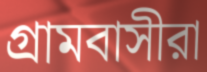
গ্রামবাসীরা